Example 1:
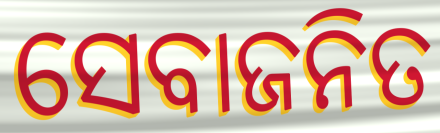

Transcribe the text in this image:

ସେବାଜନିତ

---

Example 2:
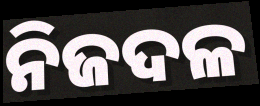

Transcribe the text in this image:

ନିଜଦଳ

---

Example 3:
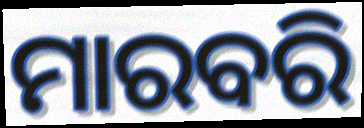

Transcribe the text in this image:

ମାରବରି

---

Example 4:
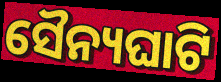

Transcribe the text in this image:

ସୈନ୍ୟଘାଟି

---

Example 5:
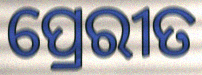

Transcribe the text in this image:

ପ୍ରେରୀତ